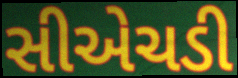
સીએચડી